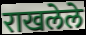
राखलेले